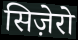
सिज़ेरो